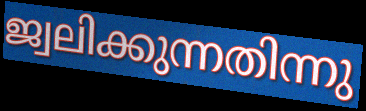
ജ്വലിക്കുന്നതിന്നു